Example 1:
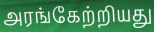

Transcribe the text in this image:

அரங்கேற்றியது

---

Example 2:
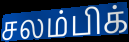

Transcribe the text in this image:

சலம்பிக்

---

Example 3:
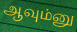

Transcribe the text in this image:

ஆவும்னு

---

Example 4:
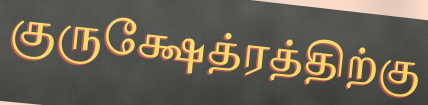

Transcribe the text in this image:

குருக்ஷேத்ரத்திற்கு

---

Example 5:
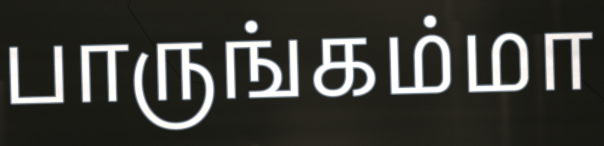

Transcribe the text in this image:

பாருங்கம்மா